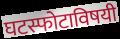
घटस्फोटाविषयी